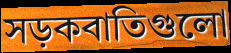
সড়কবাতিগুলো